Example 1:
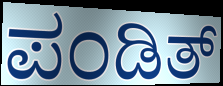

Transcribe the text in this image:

ಪಂಡಿತ್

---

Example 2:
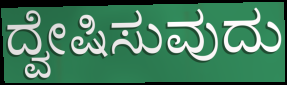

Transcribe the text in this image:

ದ್ವೇಷಿಸುವುದು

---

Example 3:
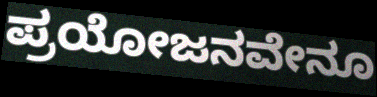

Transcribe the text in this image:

ಪ್ರಯೋಜನವೇನೂ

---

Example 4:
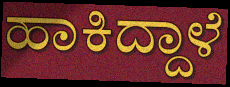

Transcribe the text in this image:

ಹಾಕಿದ್ದಾಳೆ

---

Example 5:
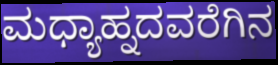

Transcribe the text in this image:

ಮಧ್ಯಾಹ್ನದವರೆಗಿನ